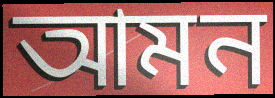
আমন